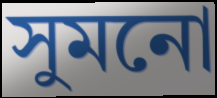
সুমনো